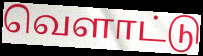
வெளாட்டு